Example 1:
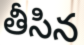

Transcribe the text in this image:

తీసిన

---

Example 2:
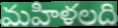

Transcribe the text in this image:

మహిళలది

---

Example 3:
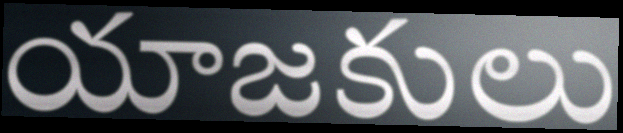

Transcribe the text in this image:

యాజకులు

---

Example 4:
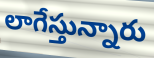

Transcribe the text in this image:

లాగేస్తున్నారు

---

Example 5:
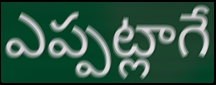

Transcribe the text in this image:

ఎప్పట్లాగే